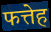
फत्तेह